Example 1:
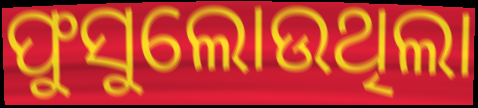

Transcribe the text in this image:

ଫୁସୁଲୋଉଥିଲା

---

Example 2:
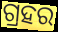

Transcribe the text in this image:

ଗ୍ରହର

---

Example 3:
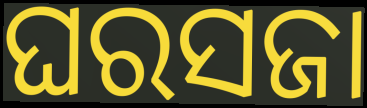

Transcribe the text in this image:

ଘରସଜା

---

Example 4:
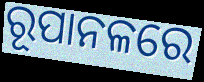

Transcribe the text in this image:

ରୂପାନଳରେ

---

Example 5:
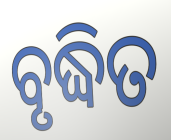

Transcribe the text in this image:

ବୃଦ୍ଧିତ